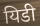
यिडी